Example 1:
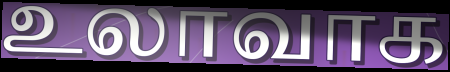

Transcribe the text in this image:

உலாவாக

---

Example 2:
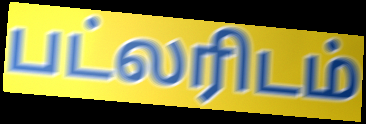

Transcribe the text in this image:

பட்லரிடம்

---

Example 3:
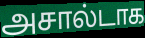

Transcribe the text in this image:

அசால்டாக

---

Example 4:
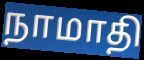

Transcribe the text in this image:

நாமாதி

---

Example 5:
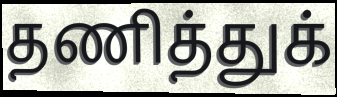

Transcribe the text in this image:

தணித்துக்